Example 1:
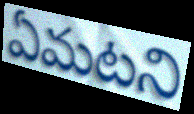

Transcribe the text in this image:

ఏమటని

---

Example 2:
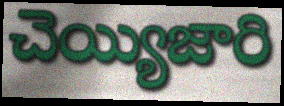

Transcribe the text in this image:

చెయ్యిజారి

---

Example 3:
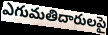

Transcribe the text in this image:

ఎగుమతిదారులపై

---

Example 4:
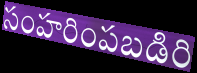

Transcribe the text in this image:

సంహరింపబడిరి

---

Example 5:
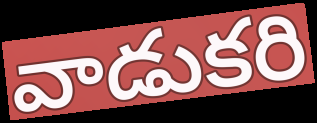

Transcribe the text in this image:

వాడుకరి